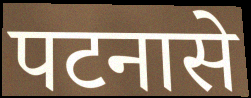
पटनासे